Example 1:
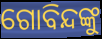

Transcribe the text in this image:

ଗୋବିନ୍ଦଙ୍କୁ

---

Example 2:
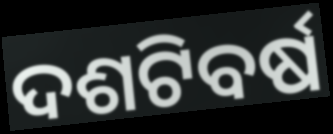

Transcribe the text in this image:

ଦଶଟିବର୍ଷ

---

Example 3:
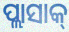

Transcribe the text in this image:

ପ୍ଲାସାକ୍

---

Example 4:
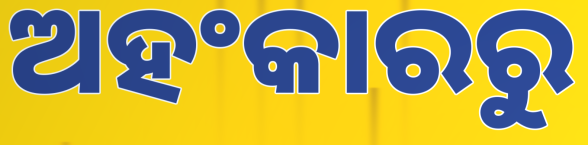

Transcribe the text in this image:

ଅହଂକାରରୁ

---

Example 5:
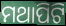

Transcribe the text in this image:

ମଥାପିଟି